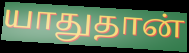
யாதுதான்